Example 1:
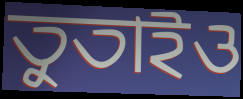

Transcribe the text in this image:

তুতাইও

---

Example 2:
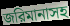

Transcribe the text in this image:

জরিমানাসহ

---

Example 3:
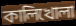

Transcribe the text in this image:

কালিখোলা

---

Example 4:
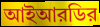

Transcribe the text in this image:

আইআরডির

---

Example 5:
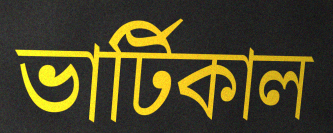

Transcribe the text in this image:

ভার্টিকাল